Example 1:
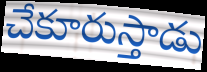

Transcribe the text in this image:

చేకూరుస్తాడు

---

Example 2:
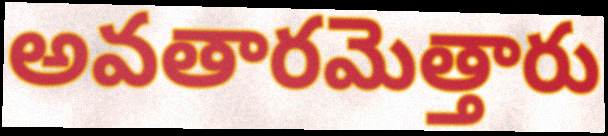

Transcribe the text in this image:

అవతారమెత్తారు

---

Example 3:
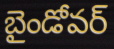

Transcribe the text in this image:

బైండోవర్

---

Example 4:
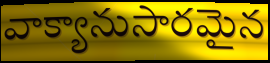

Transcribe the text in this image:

వాక్యానుసారమైన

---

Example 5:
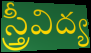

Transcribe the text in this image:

స్త్రీవిద్య